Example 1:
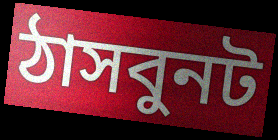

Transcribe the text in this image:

ঠাসবুনট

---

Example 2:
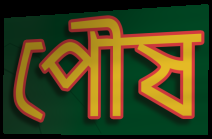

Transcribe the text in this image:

পৌষ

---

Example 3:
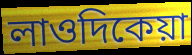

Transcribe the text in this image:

লাওদিকেয়া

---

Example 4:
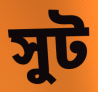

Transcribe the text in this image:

সুট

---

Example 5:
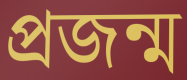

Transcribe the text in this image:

প্রজন্ম